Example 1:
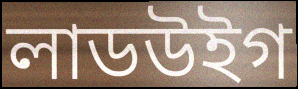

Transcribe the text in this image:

লাডউইগ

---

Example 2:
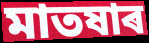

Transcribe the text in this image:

মাতষাৰ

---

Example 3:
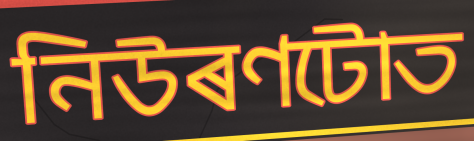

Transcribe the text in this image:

নিউৰণটোত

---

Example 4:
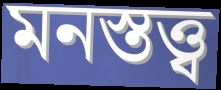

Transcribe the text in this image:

মনস্তত্ত্ব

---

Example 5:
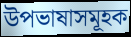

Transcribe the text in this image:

উপভাষাসমূহক